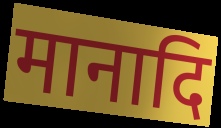
मानादि